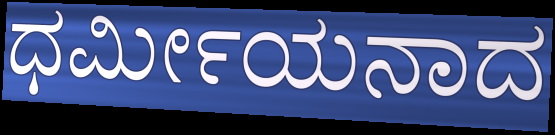
ಧರ್ಮೀಯನಾದ